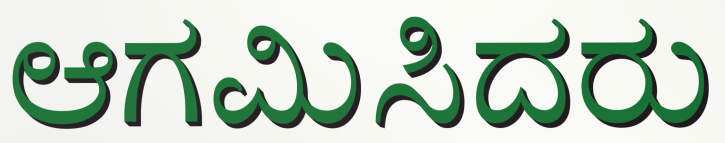
ಆಗಮಿಸಿದರು